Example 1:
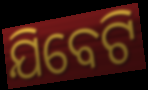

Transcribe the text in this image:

ଯିବେଟି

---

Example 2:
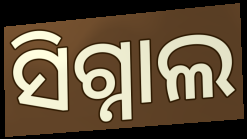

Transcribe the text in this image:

ସିଗ୍ନାଲ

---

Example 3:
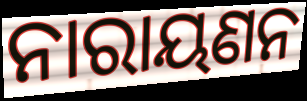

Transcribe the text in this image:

ନାରାୟଣନ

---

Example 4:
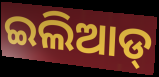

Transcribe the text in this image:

ଇଲିଆଡ୍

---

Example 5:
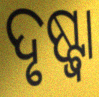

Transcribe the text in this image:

ଦୃଷ୍ଟ୍ବା